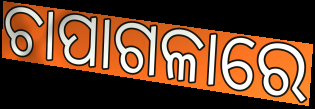
ଚାପାଗଳାରେ